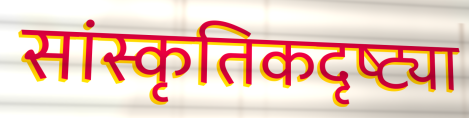
सांस्कृतिकदृष्ट्या